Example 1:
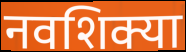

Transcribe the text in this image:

नवशिक्या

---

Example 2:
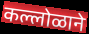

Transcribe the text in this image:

कल्लोळाने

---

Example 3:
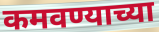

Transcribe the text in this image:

कमवण्याच्या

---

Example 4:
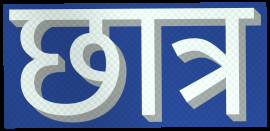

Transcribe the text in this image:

छात्र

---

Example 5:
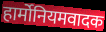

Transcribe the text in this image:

हार्मोनियमवादक